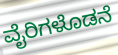
ವೈರಿಗಳೊಡನೆ